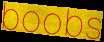
boobs